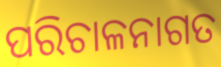
ପରିଚାଳନାଗତ